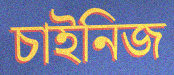
চাইনিজ